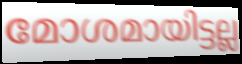
മോശമായിട്ടല്ല